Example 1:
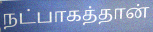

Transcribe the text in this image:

நட்பாகத்தான்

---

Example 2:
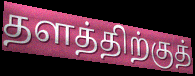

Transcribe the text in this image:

தளத்திற்குத்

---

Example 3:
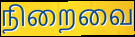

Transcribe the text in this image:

நிறைவை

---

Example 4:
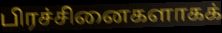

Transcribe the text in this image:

பிரச்சினைகளாகக்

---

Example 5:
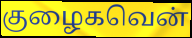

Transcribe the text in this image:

குழைகவென்